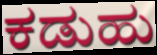
ಕಡುಹು